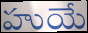
హుయే